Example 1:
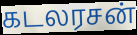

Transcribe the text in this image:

கடலரசன்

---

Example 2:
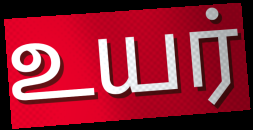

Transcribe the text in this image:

உயர்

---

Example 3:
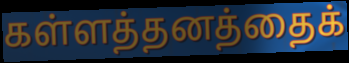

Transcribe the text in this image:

கள்ளத்தனத்தைக்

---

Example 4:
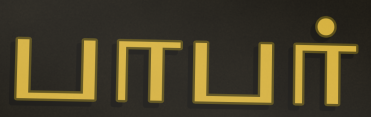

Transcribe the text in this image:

பாபர்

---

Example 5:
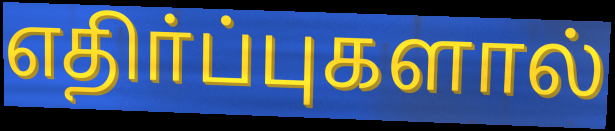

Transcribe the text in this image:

எதிர்ப்புகளால்